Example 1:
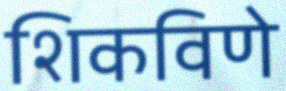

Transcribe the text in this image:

शिकविणे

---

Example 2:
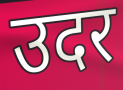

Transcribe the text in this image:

उदर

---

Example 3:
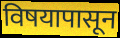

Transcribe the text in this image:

विषयापासून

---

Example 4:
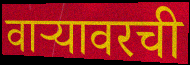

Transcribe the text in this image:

वार्‍यावरची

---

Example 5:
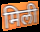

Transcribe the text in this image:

मिली